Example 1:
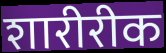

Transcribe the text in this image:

शारीरीक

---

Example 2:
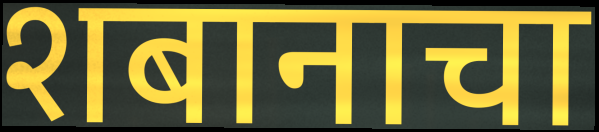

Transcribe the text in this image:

शबानाचा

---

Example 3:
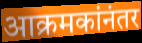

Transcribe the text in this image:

आक्रमकांनंतर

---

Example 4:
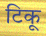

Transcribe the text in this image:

टिकू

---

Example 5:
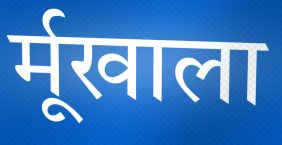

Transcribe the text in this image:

र्मूखाला